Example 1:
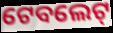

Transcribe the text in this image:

ଟେବଲେଟ୍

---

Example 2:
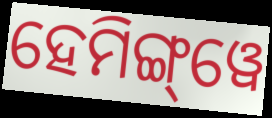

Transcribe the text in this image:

ହେମିଙ୍ଗ୍‌ୱେ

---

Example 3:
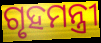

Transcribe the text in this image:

ଗୃହମନ୍ତ୍ରୀ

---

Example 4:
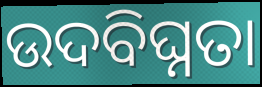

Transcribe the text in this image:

ଉଦବିଘ୍ନତା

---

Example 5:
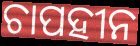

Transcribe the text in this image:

ଚାପହୀନ